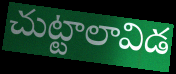
చుట్టాలావిడ